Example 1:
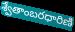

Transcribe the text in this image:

శ్వేతాంబరధారిణి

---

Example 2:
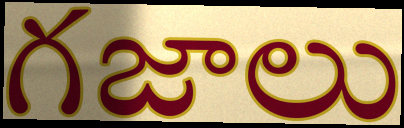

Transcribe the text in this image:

గజాలు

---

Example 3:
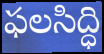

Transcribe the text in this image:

ఫలసిద్ధి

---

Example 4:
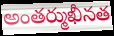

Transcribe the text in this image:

అంతర్ముఖీనత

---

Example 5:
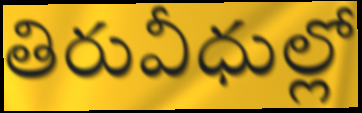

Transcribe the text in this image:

తిరువీధుల్లో